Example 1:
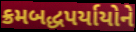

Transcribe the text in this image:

ક્રમબદ્ધપર્યાયોને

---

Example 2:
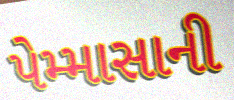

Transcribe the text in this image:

પેમ્માસાની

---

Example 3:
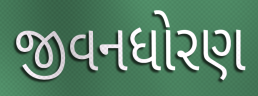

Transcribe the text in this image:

જીવનધોરણ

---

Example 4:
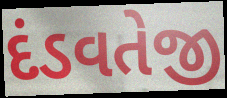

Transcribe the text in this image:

દંડવતેજી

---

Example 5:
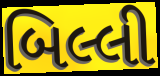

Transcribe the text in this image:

બિલ્લી